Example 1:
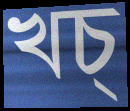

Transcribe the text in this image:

খচ্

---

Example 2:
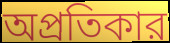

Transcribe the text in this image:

অপ্রতিকার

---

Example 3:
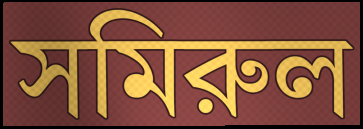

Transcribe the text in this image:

সমিরুল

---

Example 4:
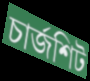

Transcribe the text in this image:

চার্জশিট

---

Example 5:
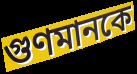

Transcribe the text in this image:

গুণমানকে